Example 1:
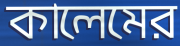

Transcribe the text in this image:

কালেমের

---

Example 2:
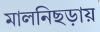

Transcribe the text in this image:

মালনিছড়ায়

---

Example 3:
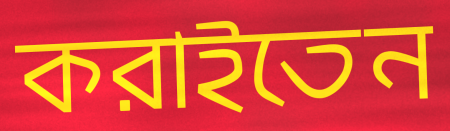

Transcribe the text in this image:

করাইতেন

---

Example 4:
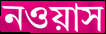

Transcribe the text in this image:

নওয়াস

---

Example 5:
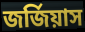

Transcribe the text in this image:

জর্জিয়াস